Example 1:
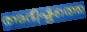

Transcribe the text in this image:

അഭീഷ്ടത്തെ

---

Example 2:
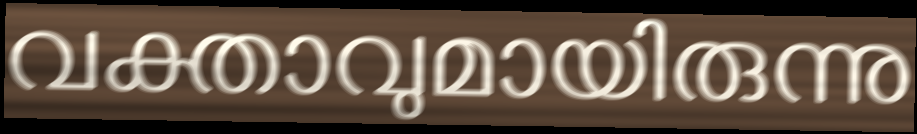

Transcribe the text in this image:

വക്താവുമായിരുന്നു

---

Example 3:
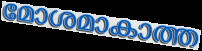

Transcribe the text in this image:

മോശമാകാത്ത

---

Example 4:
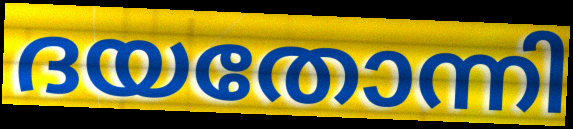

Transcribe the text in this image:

ദയതോന്നി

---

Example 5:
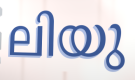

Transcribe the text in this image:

ലിയു